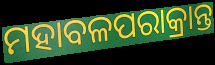
ମହାବଳପରାକ୍ରାନ୍ତ